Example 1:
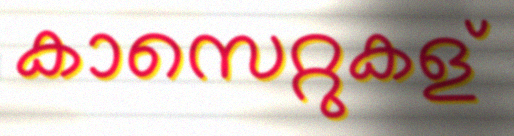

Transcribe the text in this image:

കാസെറ്റുകള്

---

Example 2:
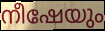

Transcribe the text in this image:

നീഷേയും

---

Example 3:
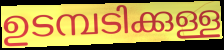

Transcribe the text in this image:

ഉടമ്പടിക്കുള്ള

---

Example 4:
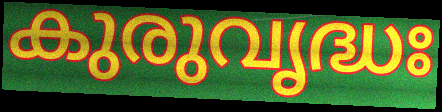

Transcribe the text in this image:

കുരുവൃദ്ധഃ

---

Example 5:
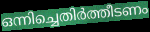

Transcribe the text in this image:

ഒന്നിച്ചെതിർത്തീടണം